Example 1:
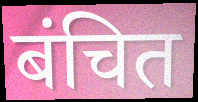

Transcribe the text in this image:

बंचित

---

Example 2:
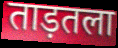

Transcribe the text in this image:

ताड़तला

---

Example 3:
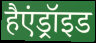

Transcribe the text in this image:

हैएंड्रॉइड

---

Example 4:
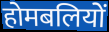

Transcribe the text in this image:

होमबलियों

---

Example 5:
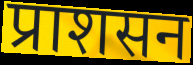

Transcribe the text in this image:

प्राशसन